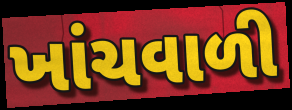
ખાંચવાળી